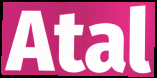
Atal